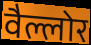
वैल्लोर